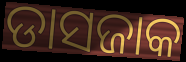
ଡାସଜାକ